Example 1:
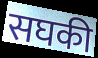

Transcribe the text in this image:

सघकी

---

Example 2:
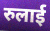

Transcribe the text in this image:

रुलाई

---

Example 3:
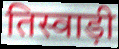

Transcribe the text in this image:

तिस्वाड़ी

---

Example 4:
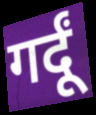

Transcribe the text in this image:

गर्दूं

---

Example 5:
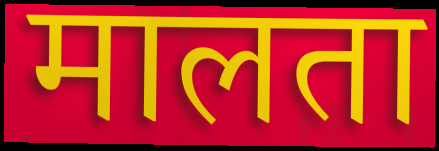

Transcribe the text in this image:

मालता